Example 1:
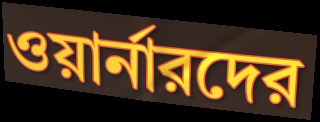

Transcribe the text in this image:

ওয়ার্নারদের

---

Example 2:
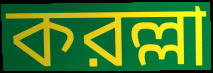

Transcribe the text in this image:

করল্লা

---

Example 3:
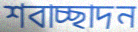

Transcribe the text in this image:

শবাচ্ছাদন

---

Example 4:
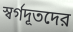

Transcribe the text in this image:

স্বর্গদূতদের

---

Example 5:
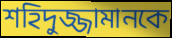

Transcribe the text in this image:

শহিদুজ্জামানকে